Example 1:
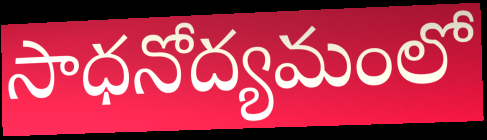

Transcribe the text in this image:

సాధనోద్యమంలో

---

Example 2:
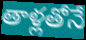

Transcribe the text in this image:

తాళ్లతోనే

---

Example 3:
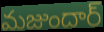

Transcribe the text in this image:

మజుందార్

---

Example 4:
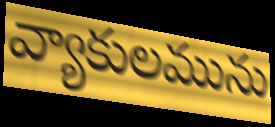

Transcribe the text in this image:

వ్యాకులమును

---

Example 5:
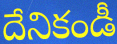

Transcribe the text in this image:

దేనికండీ